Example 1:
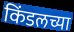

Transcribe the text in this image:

किंडलच्या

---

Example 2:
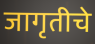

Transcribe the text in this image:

जागृतीचे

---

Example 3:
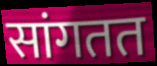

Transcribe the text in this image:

सांगतत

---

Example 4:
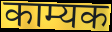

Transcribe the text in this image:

काम्यक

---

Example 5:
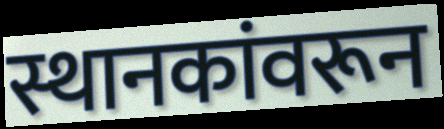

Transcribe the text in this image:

स्थानकांवरून